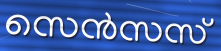
സെൻസസ്